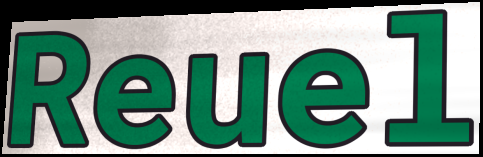
Reuel